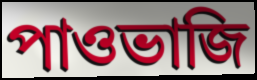
পাওভাজি